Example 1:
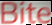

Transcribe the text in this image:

Bite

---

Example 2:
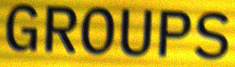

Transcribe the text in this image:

GROUPS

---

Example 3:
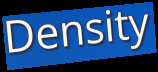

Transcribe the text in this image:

Density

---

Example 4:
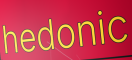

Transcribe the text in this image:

hedonic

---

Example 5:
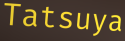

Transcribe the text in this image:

Tatsuya